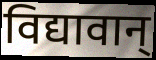
विद्यावान्